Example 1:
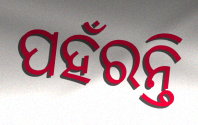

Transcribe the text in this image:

ପହଁରନ୍ତି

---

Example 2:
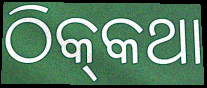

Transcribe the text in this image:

ଠିକ୍‌କଥା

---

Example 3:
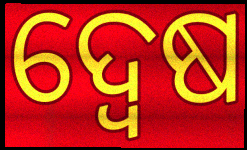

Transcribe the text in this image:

ଦ୍ବେଷ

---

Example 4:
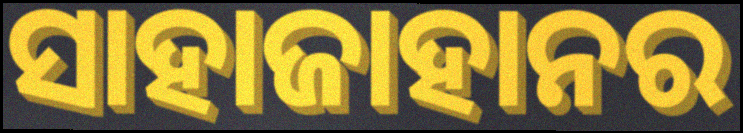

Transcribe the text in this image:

ସାହାଜାହାନର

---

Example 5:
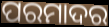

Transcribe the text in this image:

ପରମାଦର